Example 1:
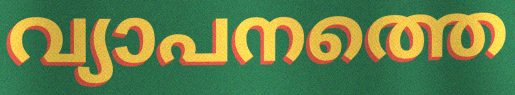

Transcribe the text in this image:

വ്യാപനത്തെ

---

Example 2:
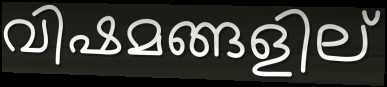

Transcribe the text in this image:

വിഷമങ്ങളില്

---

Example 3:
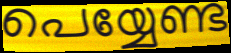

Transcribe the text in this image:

പെയ്യേണ്ട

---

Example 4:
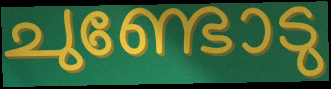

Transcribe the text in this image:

ചുണ്ടോടു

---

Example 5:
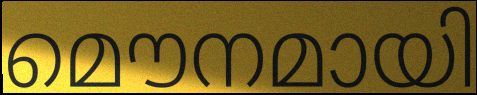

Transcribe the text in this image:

മൌനമായി